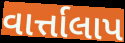
વાર્ત્તાલાપ